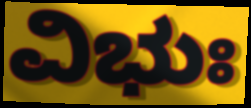
ವಿಭುಃ